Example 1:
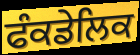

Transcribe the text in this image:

ਫੰਕਡੇਲਿਕ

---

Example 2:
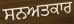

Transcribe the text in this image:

ਸਨਅਤਕਾਰ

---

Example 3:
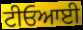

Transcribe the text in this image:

ਟੀਓਆਈ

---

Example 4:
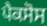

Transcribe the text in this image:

ਪੈਕਸੋਸ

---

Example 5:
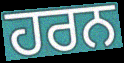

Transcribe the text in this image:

ਹਰਨ